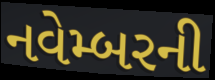
નવેમ્બરની